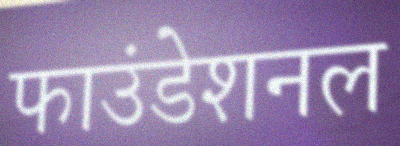
फाउंडेशनल